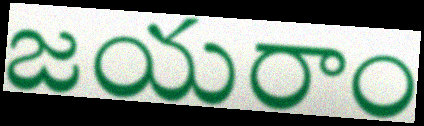
జయరాం